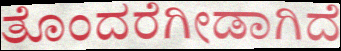
ತೊಂದರೆಗೀಡಾಗಿದೆ